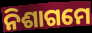
ନିଶାଗମେ